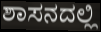
ಶಾಸನದಲ್ಲಿ